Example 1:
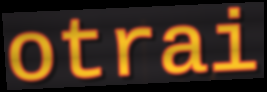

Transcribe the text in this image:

otrai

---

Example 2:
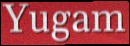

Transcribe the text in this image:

Yugam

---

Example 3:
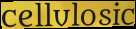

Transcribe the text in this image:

cellulosic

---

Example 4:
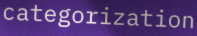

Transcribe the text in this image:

categorization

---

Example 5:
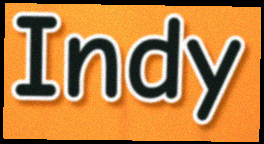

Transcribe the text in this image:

Indy